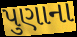
પુણાના